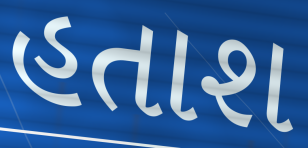
હતાશ